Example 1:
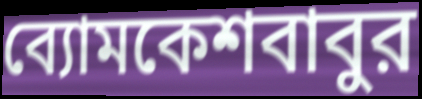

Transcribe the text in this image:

ব্যোমকেশবাবুর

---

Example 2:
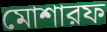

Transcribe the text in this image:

মোশারফ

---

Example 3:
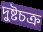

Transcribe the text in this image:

দুষ্টচক্র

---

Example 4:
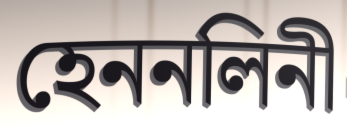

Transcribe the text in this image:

হেননলিনী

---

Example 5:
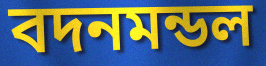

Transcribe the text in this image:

বদনমন্ডল